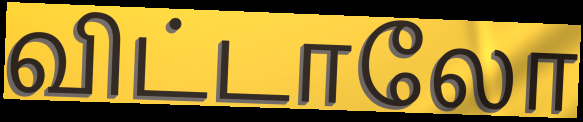
விட்டாலோ